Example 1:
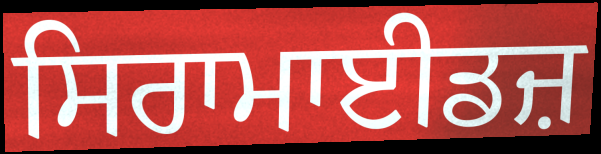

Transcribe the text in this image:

ਸਿਰਾਮਾਈਡਜ਼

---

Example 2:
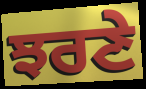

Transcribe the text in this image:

ਝਰਣੇ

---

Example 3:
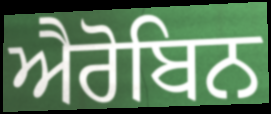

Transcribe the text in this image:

ਐਰੋਬਿਨ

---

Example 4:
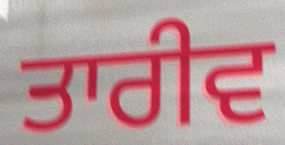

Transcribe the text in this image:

ਤਾਰੀਵ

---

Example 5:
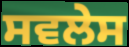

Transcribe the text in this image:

ਸਵਲੇਸ